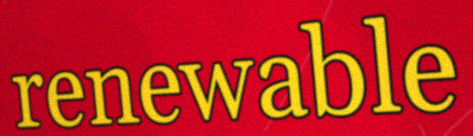
renewable